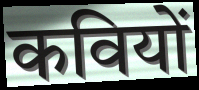
कवियों